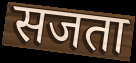
सजता